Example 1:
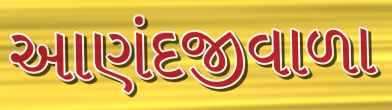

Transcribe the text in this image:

આણંદજીવાળા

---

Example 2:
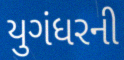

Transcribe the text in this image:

યુગંધરની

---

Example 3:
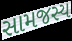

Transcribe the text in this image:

સામજસ્ય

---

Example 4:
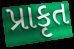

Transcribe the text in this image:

પ્રાકૃત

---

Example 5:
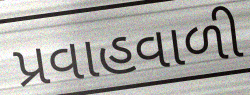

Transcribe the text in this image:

પ્રવાહવાળી